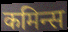
कमिन्स